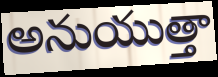
అనుయుత్తా